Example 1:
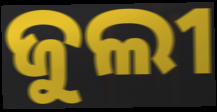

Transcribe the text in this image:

ଜୁଲୀ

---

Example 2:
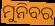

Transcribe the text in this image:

ମୁନିବର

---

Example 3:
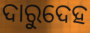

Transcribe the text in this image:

ଦାରୁଦେହ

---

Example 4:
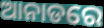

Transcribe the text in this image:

ଆନାଡରେ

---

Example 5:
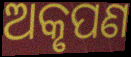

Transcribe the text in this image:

ଅକୃପଣ